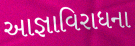
આજ્ઞાવિરાધના